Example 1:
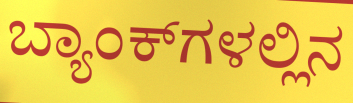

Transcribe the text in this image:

ಬ್ಯಾಂಕ್‌ಗಳಲ್ಲಿನ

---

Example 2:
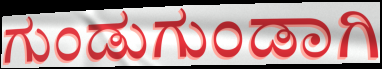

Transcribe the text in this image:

ಗುಂಡುಗುಂಡಾಗಿ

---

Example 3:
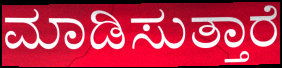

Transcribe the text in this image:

ಮಾಡಿಸುತ್ತಾರೆ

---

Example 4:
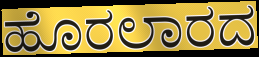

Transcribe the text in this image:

ಹೊರಲಾರದ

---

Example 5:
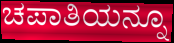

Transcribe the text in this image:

ಚಪಾತಿಯನ್ನೂ